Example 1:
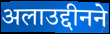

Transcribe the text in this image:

अलाउद्दीनने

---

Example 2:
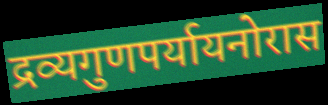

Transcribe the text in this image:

द्रव्यगुणपर्यायनोरास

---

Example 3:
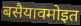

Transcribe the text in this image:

बसैयावमोइत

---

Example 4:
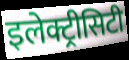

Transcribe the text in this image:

इलेक्ट्रीसिटी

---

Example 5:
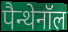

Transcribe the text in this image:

पैन्थेनॉल